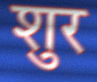
शुर